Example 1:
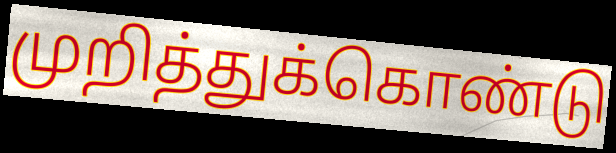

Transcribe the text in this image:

முறித்துக்கொண்டு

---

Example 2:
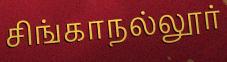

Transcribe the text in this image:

சிங்காநல்லூர்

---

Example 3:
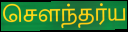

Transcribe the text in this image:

செளந்தர்ய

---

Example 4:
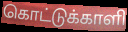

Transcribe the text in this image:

கொட்டுக்காளி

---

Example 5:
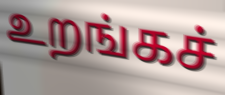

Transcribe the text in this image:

உறங்கச்